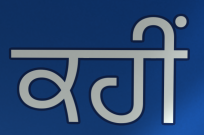
ਕਹੀਂ